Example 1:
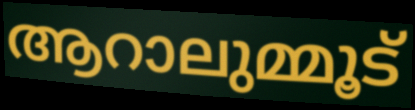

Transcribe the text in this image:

ആറാലുമ്മൂട്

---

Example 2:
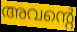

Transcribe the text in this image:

അവന്റെ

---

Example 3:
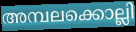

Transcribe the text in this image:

അമ്പലക്കൊല്ലി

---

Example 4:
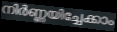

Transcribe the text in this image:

നിർണ്ണയിച്ചേക്കാം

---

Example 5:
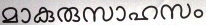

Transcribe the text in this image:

മാകുരുസാഹസം